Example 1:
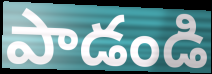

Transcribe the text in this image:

పాడండి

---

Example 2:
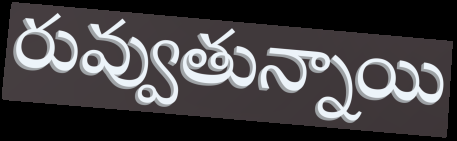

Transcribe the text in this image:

రువ్వుతున్నాయి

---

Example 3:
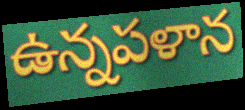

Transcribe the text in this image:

ఉన్నపళాన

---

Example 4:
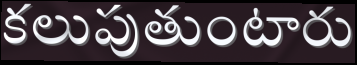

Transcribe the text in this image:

కలుపుతుంటారు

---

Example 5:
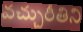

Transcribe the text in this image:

వచ్చురీతిని